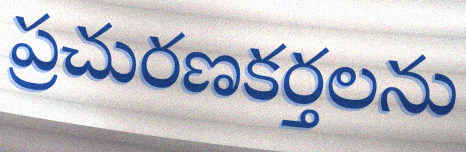
ప్రచురణకర్తలను